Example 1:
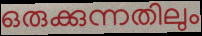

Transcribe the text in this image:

ഒരുക്കുന്നതിലും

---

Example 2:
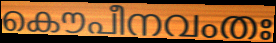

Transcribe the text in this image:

കൌപീനവംതഃ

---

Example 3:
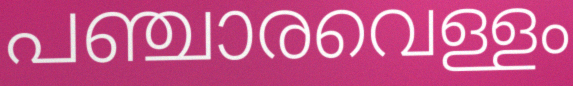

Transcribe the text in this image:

പഞ്ചാരവെള്ളം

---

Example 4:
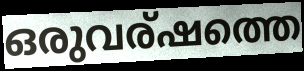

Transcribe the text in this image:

ഒരുവര്ഷത്തെ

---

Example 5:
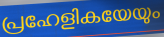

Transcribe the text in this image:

പ്രഹേളികയേയും